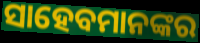
ସାହେବମାନଙ୍କର